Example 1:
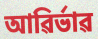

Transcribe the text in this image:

আৱিৰ্ভাৱ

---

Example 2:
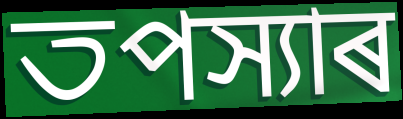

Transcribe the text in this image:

তপস্যাৰ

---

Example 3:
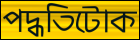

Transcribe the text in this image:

পদ্ধতিটোক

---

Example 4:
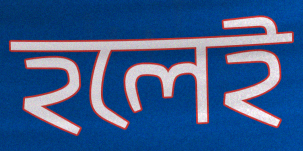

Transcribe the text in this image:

হলেই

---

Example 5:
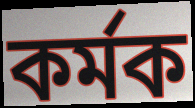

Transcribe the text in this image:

কৰ্মক